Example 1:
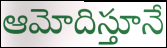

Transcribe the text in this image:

ఆమోదిస్తూనే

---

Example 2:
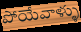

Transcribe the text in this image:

పోయేవాళ్ళు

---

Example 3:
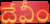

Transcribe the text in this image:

దేవీం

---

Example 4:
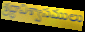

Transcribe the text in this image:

శ్రద్ధావిశ్వాసములు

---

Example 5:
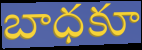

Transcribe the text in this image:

బాధకూ